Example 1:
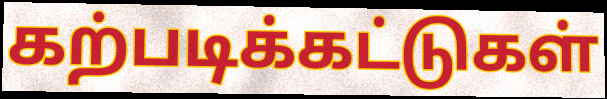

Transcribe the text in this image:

கற்படிக்கட்டுகள்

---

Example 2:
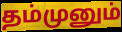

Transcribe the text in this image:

தம்முனும்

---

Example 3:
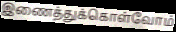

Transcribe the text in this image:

இணைத்துக்கொள்வோம்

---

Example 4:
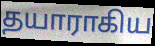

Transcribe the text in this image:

தயாராகிய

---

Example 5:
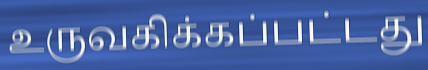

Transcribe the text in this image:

உருவகிக்கப்பட்டது